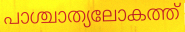
പാശ്ചാത്യലോകത്ത്